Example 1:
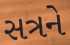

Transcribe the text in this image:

સત્રને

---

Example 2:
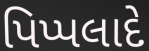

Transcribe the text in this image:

પિપ્પલાદે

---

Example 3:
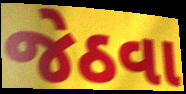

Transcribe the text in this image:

જેઠવા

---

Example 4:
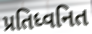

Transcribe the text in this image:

પ્રતિધ્વનિત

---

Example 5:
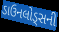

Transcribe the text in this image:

ડાઉનલોડ્સની